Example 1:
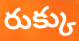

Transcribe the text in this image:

రుక్కు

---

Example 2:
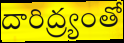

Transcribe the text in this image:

దారిద్ర్యంతో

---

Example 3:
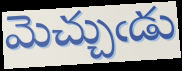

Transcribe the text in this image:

మెచ్చుఁడు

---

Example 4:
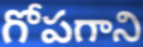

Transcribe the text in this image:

గోపగాని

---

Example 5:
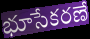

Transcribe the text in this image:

భూసేకరణే